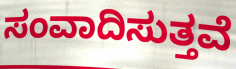
ಸಂವಾದಿಸುತ್ತವೆ